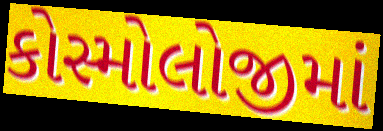
કોસ્મોલોજીમાં